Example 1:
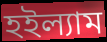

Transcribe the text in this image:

হইল্যাম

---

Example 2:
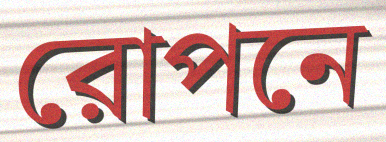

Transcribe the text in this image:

রোপনে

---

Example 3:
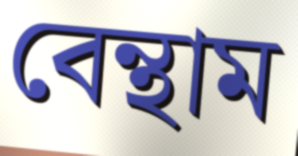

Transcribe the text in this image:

বেন্থাম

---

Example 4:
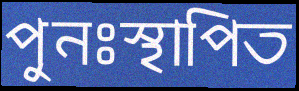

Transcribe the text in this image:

পুনঃস্থাপিত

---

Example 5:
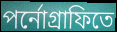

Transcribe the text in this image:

পর্নোগ্রাফিতে